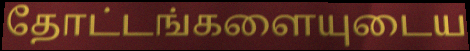
தோட்டங்களையுடைய